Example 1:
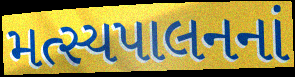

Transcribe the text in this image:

મત્સ્યપાલનનાં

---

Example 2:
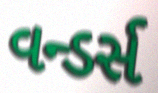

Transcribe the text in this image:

વન્ડર્સ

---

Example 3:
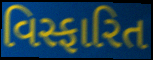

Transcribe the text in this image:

વિસ્ફારિત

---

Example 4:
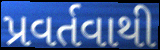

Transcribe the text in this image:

પ્રવર્તવાથી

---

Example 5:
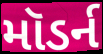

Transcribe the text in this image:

મૉડર્ન